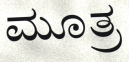
ಮೂತ್ರ